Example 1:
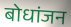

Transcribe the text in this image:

बोधांजन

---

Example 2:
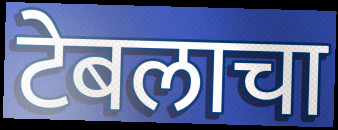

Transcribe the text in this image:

टेबलाचा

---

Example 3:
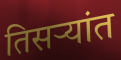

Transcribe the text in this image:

तिसर्‍यांत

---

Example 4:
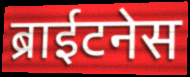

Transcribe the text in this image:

ब्राईटनेस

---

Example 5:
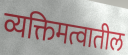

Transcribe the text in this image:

व्यक्तिमत्वातील